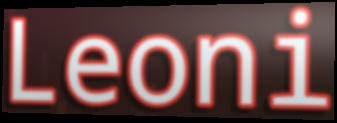
Leoni